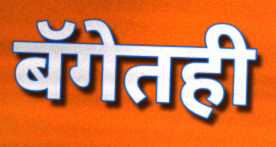
बॅगेतही